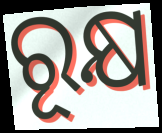
ରୂକ୍ଷ